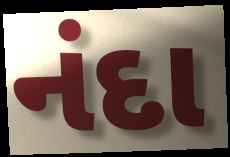
નંદા